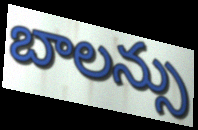
బాలన్సు